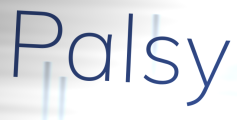
Palsy